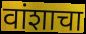
वांशाचा